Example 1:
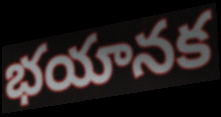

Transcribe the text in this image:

భయానక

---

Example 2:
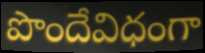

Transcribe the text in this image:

పొందేవిధంగా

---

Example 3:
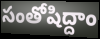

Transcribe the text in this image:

సంతోషిద్దాం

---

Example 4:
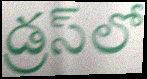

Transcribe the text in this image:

డ్రస్‌లో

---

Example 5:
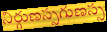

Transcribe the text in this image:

నిర్గుణస్సగుణస్స